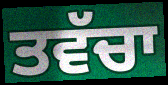
ਤਵੱਚਾ